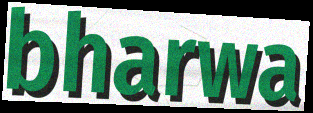
bharwa